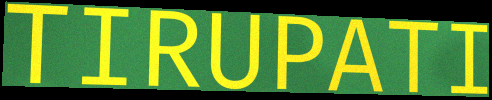
TIRUPATI